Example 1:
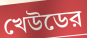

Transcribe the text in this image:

খেউডের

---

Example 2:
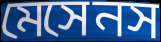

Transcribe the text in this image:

মেসেনস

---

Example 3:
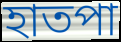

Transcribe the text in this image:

হাতপা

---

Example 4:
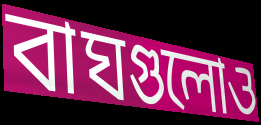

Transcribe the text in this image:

বাঘগুলোও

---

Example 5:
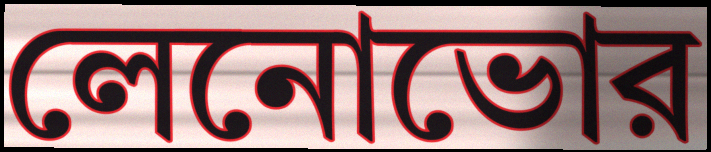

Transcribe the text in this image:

লেনোভোর